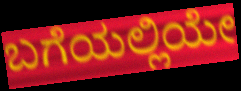
ಬಗೆಯಲ್ಲಿಯೇ